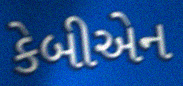
કેબીએન